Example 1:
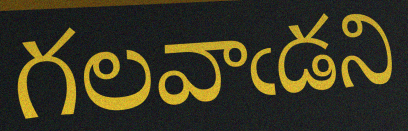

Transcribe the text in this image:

గలవాఁడని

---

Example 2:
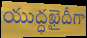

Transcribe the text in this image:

యుద్ధఖైదీగా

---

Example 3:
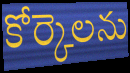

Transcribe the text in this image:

కోర్కెలను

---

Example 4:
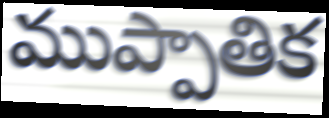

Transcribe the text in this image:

ముప్పాతిక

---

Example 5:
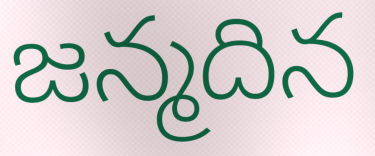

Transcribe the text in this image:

జన్మదిన